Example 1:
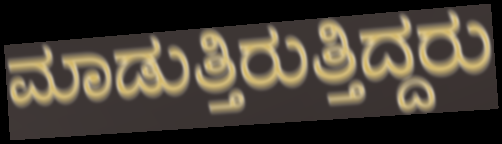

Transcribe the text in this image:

ಮಾಡುತ್ತಿರುತ್ತಿದ್ದರು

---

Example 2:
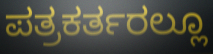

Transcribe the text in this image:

ಪತ್ರಕರ್ತರಲ್ಲೂ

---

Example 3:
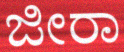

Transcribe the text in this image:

ಜೀರಾ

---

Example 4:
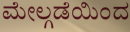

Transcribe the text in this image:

ಮೇಲ್ಗಡೆಯಿಂದ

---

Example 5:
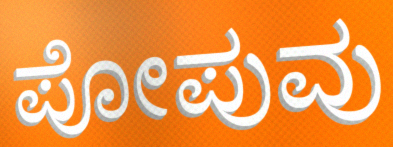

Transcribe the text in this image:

ಪೋಪುವು